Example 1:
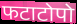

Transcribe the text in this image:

फटाटोपो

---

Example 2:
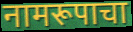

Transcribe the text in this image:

नामरूपाचा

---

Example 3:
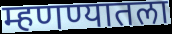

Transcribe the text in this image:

म्हणण्यातला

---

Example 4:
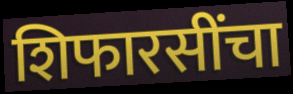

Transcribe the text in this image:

शिफारसींचा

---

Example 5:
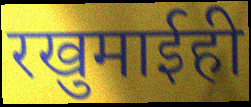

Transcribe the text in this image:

रखुमाईही